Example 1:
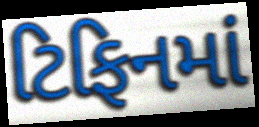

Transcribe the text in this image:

ટિફિનમાં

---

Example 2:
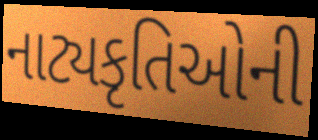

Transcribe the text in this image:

નાટ્યકૃતિઓની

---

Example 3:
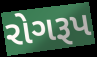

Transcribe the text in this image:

રોગરૂપ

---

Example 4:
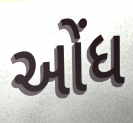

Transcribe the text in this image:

ઓંધ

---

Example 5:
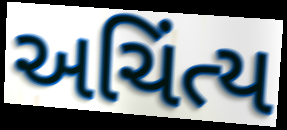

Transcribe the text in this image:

અચિંત્ય